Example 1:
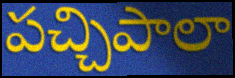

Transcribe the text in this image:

పచ్చిపాలా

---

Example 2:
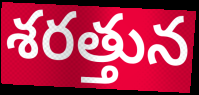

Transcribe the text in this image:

శరత్తున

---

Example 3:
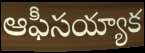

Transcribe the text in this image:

ఆఫీసయ్యాక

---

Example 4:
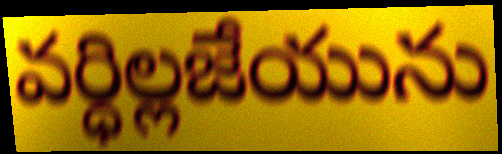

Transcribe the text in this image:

వర్ధిల్లజేయును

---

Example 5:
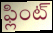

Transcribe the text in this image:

ఫ్లింట్